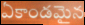
ఏకాండమైన